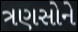
ત્રણસોને